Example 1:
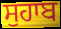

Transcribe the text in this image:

ਸੁਹਾਬ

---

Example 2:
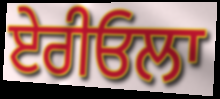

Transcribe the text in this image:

ਏਰੀਓਲਾ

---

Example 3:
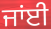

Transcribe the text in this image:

ਜਾਂਈ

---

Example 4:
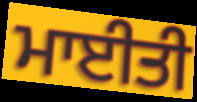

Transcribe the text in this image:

ਮਾਈਤੀ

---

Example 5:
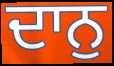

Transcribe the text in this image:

ਦਾਨੁ